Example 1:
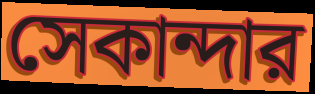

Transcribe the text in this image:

সেকান্দার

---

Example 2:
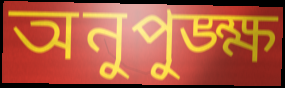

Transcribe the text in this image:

অনুপুঙ্ক্ষ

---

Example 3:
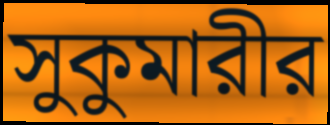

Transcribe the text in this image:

সুকুমারীর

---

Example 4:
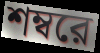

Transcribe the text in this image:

শম্বরে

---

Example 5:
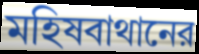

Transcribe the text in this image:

মহিষবাথানের